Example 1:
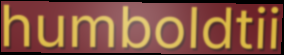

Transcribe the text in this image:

humboldtii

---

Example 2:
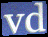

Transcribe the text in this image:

vd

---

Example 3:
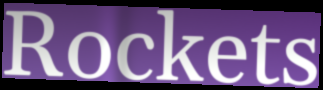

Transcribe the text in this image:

Rockets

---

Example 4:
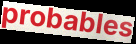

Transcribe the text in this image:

probables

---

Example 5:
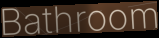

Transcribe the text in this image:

Bathroom